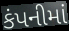
કંપનીમાં